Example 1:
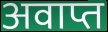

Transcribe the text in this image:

अवाप्त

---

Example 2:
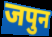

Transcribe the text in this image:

जपुन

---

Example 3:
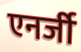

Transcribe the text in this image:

एनर्जी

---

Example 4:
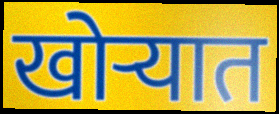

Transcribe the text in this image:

खोर्‍यात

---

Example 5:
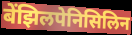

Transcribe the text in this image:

बेंझिलपेनिसिलिन